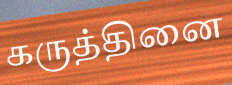
கருத்தினை